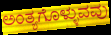
ಅಂತ್ಯಗೊಳ್ಳುವವು